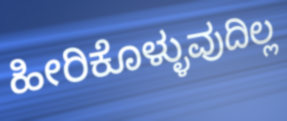
ಹೀರಿಕೊಳ್ಳುವುದಿಲ್ಲ